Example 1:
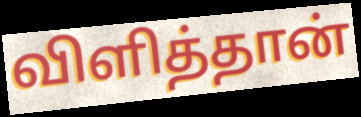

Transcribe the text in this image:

விளித்தான்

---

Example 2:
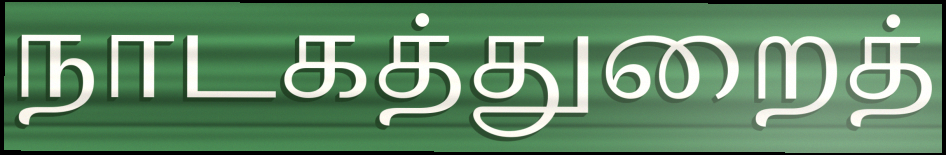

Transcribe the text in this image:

நாடகத்துறைத்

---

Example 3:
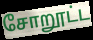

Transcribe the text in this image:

சோறூட்ட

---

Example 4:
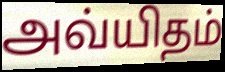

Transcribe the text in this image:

அவ்யிதம்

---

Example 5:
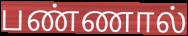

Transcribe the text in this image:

பண்ணால்